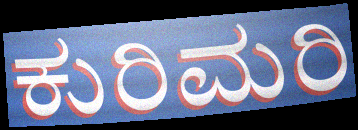
ಕುರಿಮರಿ